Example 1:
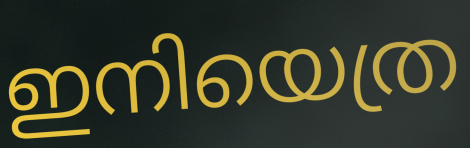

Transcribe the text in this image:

ഇനിയെത്ര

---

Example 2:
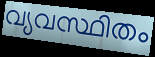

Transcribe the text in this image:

വ്യവസ്ഥിതം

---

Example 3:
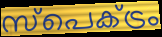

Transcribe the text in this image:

സ്പെക്ട്രം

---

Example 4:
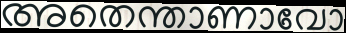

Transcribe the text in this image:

അതെന്താണാവോ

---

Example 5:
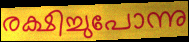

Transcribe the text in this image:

രക്ഷിച്ചുപോന്നു